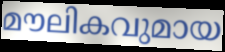
മൗലികവുമായ